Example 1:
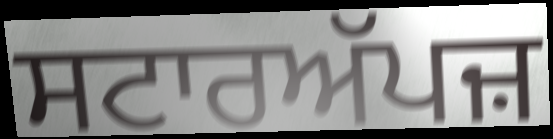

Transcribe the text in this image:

ਸਟਾਰਅੱਪਜ਼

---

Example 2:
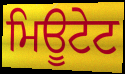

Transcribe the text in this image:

ਮਿਊਟੇਟ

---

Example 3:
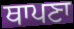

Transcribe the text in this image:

ਥਾਪਣਾ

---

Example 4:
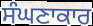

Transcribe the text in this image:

ਸੰਘਣਾਕਾਰ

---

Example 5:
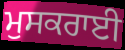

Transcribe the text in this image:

ਮੁਸਕਰਾਈ